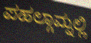
ಪಹಲ್ಗಾಮ್ನಲ್ಲಿ